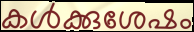
കൾക്കുശേഷം